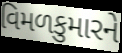
વિમળકુમારને